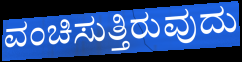
ವಂಚಿಸುತ್ತಿರುವುದು